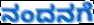
ನಂದನಗೆ